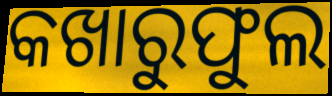
କଖାରୁଫୁଲ